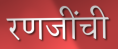
रणजींची